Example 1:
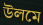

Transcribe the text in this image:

উলমে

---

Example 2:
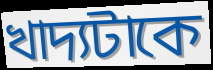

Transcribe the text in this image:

খাদ্যটাকে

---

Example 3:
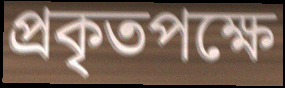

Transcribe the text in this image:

প্রকৃতপক্ষে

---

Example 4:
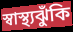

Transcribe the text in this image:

স্বাস্থ্যঝুঁকি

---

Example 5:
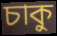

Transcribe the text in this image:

চাকু